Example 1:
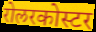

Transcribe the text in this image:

रोलरकोस्टर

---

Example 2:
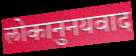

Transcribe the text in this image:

लोकानुनयवाद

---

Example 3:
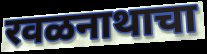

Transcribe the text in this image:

रवळनाथाचा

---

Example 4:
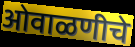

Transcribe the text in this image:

ओवाळणीचे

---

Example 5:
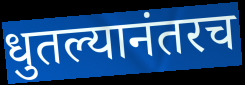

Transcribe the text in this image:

धुतल्यानंतरच